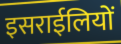
इसराईलियों